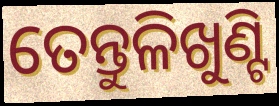
ତେନ୍ତୁଳିଖୁଣ୍ଟି